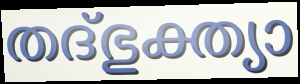
തദ്ഭുക്ത്യാ